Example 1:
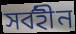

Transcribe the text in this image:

সর্বহীন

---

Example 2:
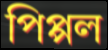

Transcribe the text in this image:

পিপ্পল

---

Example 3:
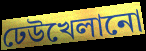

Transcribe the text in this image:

ঢেউখেলানো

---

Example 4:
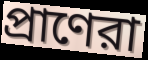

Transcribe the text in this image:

প্রাণেরা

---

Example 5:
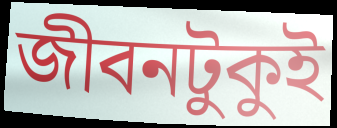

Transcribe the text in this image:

জীবনটুকুই